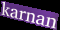
karnan